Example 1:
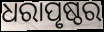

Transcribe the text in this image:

ଧରାପୃଷ୍ଠର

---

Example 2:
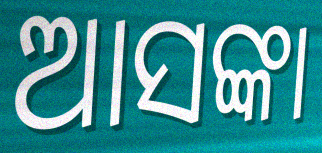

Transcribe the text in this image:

ଆସଙ୍କା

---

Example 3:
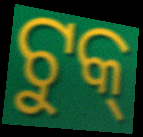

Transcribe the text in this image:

ଟୁକ୍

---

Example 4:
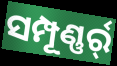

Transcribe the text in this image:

ସମ୍ପୂଣ୍ଣର୍ର୍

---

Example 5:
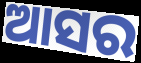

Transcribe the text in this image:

ଆସର